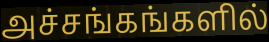
அச்சங்கங்களில்